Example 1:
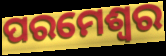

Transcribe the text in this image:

ପରମେଶ୍ବର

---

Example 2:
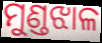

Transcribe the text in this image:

ମୁଣ୍ଡଝାଳ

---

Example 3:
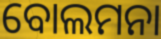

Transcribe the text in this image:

ବୋଲମନା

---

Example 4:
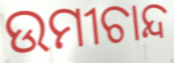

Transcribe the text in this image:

ଉମୀଚାନ୍ଦ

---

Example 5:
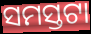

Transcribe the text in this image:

ସମସ୍ତଟା